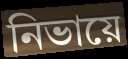
নিভায়ে